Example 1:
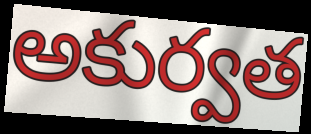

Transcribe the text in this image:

అకుర్వత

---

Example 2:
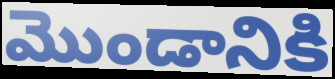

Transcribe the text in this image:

మొండానికి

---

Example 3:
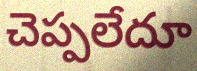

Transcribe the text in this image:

చెప్పలేదూ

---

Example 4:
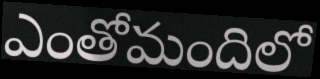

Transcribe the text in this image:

ఎంతోమందిలో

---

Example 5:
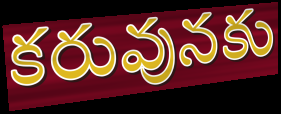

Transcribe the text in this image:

కరువునకు